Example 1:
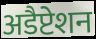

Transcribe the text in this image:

अडैप्टेशन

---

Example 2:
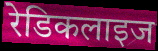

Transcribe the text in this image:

रेडिकलाइज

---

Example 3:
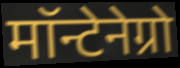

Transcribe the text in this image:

मॉन्टेनेग्रो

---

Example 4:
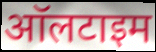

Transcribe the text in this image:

ऑलटाइम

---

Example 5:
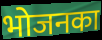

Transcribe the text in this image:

भोजनका